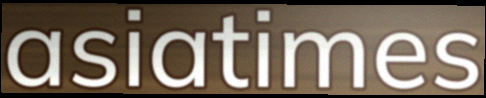
asiatimes